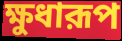
ক্ষুধারূপ